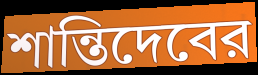
শান্তিদেবের